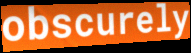
obscurely